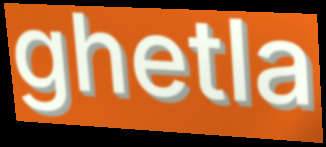
ghetla